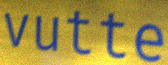
vutte